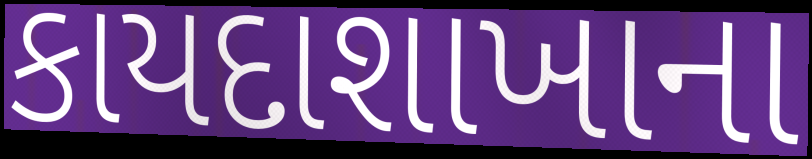
કાયદાશાખાના